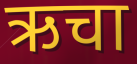
ऋचा